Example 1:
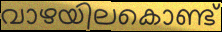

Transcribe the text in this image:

വാഴയിലകൊണ്ട്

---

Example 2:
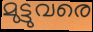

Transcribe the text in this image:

മുട്ടുവരെ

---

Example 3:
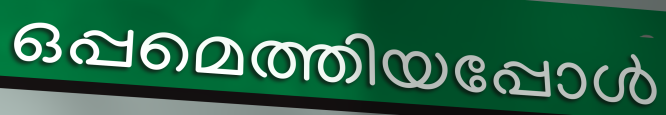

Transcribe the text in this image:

ഒപ്പമെത്തിയപ്പോൾ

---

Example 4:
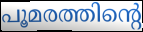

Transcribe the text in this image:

പൂമരത്തിന്റെ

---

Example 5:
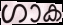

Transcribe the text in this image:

ഗാക